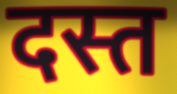
दस्त